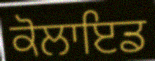
ਕੋਲਾਇਡ